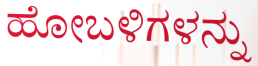
ಹೋಬಳಿಗಳನ್ನು